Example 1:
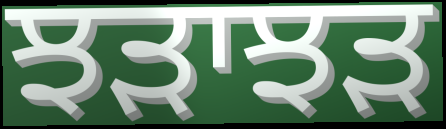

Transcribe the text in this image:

ਝੜਾਝੜ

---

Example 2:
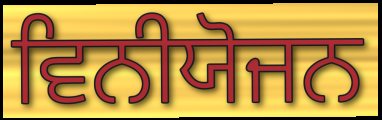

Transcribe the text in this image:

ਵਿਨੀਯੋਜਨ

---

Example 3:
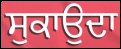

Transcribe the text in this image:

ਸੁਕਾਉਦਾ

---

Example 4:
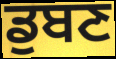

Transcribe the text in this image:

ਡੁਬਣ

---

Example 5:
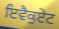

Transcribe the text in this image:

ਇਵੈਕੁਏਟ